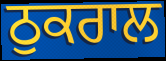
ਠੁਕਰਾਲ